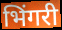
भिंगरी